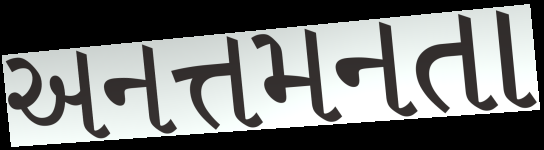
અનત્તમનતા